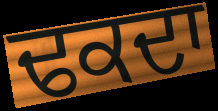
ਢਕਦਾ